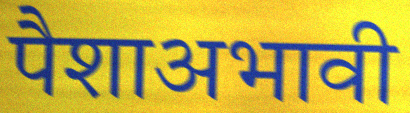
पैशाअभावी